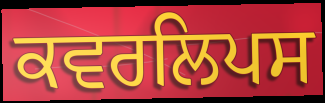
ਕਵਰਲਿਪਸ